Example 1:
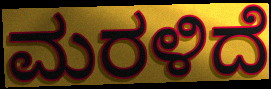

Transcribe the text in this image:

ಮರಳಿದೆ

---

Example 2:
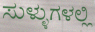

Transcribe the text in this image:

ಸುಳ್ಳುಗಳಲ್ಲಿ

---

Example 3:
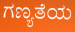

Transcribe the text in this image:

ಗಣ್ಯತೆಯ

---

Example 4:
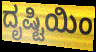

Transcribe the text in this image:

ದೃಷ್ಟಿಯಿಂ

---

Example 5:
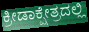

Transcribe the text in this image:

ಕ್ರೀಡಾಕ್ಷೇತ್ರದಲ್ಲಿ